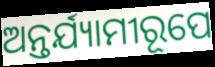
ଅନ୍ତର୍ଯ୍ୟାମୀରୂପେ